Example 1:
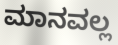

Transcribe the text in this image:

ಮಾನವಲ್ಲ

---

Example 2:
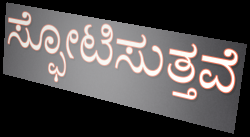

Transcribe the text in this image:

ಸ್ಫೋಟಿಸುತ್ತವೆ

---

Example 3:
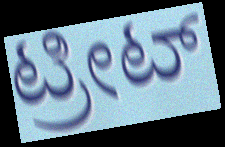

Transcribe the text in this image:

ಟ್ರೀಟ್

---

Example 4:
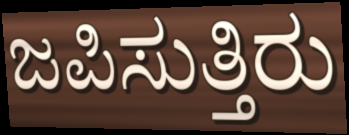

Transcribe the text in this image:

ಜಪಿಸುತ್ತಿರು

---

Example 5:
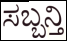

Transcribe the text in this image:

ಸಬ್ಬನ್ತಿ